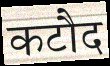
कटौद